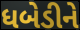
ધબેડીને